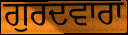
ਗੁਰਦਵਾਰਾ